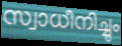
സ്വാധീനിച്ചും